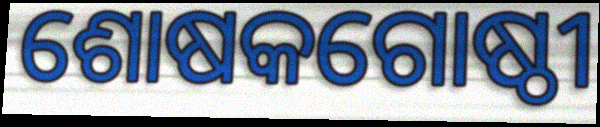
ଶୋଷକଗୋଷ୍ଠୀ